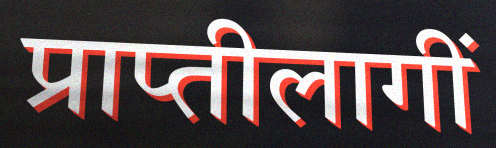
प्राप्तीलागीं